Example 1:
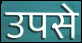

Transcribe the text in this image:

उपसे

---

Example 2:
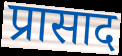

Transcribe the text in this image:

प्रासाद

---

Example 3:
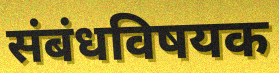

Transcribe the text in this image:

संबंधविषयक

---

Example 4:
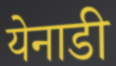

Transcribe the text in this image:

येनाडी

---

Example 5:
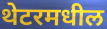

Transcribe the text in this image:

थेटरमधील